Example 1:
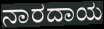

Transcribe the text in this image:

ನಾರದಾಯ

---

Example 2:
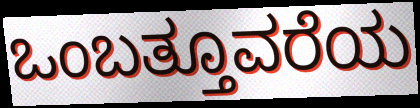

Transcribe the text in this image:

ಒಂಬತ್ತೂವರೆಯ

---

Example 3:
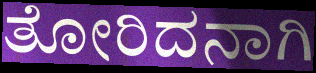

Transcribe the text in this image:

ತೋರಿದನಾಗಿ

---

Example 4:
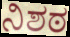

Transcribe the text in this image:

ನಿಶಠ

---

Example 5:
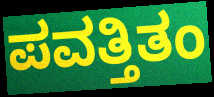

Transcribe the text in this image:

ಪವತ್ತಿತಂ